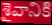
శైవానికి